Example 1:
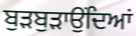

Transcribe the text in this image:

ਬੁੜਬੁੜਾਉਂਦਿਆਂ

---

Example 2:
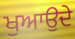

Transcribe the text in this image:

ਖੁਆਉਦੇ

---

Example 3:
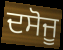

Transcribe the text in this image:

ਦਸੋਜੂ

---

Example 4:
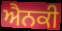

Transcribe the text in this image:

ਐਨਕੀ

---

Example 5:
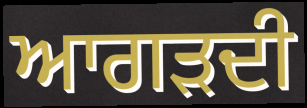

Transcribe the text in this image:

ਆਗੜਦੀ